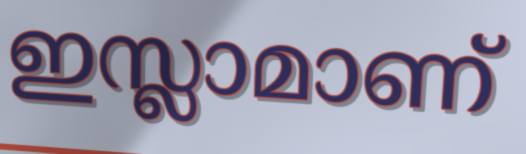
ഇസ്ലാമാണ്